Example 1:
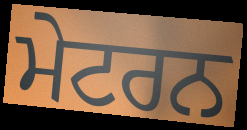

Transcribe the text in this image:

ਮੇਟਰਨ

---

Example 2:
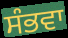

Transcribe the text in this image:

ਸੰਭਵਾ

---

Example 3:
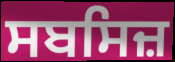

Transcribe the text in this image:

ਸਬਸਿਜ਼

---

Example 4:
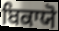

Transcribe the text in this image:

ਬਿਕਾਯੋ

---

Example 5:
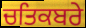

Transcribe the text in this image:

ਚਤਿਕਬਰੇ